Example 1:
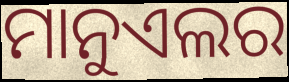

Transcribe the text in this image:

ମାନୁଏଲର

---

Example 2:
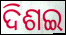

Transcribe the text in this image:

ଦିଶଇ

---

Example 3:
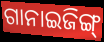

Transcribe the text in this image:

ଗାନାଇଜିଙ୍ଗ୍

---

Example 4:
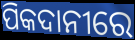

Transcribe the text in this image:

ପିକଦାନୀରେ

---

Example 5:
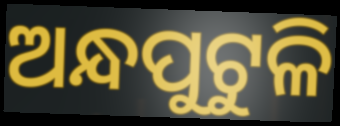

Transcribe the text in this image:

ଅନ୍ଧପୁଟୁଳି